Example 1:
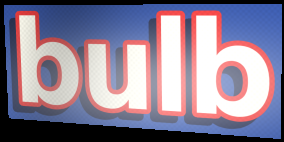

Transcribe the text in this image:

bulb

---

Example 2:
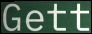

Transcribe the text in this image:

Gett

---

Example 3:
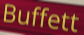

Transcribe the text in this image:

Buffett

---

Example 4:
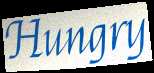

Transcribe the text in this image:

Hungry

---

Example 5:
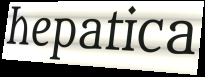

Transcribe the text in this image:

hepatica